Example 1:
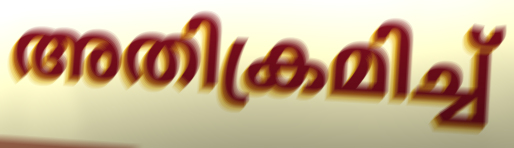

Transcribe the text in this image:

അതിക്രമിച്ച്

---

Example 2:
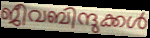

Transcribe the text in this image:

ജീവബിന്ദുക്കൾ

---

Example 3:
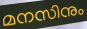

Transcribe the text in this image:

മനസിനും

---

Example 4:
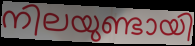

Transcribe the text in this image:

നിലയുണ്ടായി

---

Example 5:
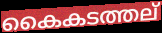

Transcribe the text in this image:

കൈകടത്തല്